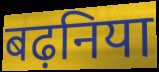
बढ़निया